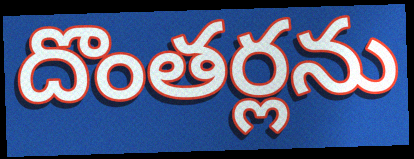
దొంతర్లను